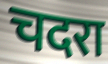
चदरा